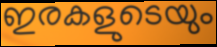
ഇരകളുടെയും